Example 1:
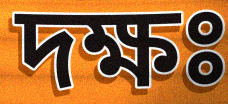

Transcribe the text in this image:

দক্ষঃ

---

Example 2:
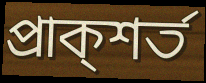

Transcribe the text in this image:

প্রাক্‌শর্ত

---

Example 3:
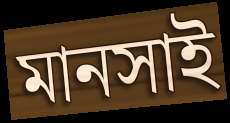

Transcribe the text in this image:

মানসাই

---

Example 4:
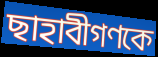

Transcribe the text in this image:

ছাহাবীগণকে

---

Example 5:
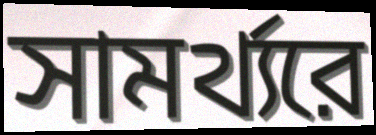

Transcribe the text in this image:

সামর্থ্যরে